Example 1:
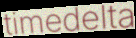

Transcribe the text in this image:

timedelta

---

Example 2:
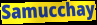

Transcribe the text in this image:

Samucchay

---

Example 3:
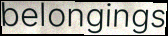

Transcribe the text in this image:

belongings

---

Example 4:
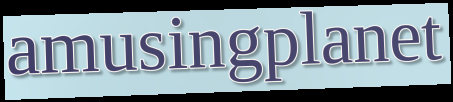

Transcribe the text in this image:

amusingplanet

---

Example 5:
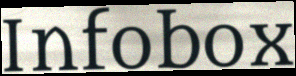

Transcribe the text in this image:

Infobox